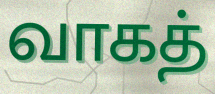
வாகத்